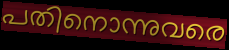
പതിനൊന്നുവരെ